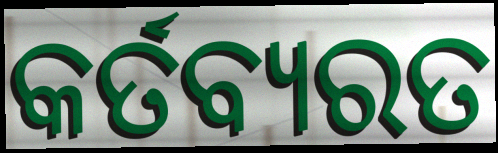
କର୍ତବ୍ୟରତ